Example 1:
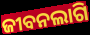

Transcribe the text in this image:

ଜୀବନଲାଗି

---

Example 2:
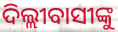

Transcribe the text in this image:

ଦିଲ୍ଲୀବାସୀଙ୍କୁ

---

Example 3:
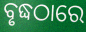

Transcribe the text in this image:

ବୃଦ୍ଧଠାରେ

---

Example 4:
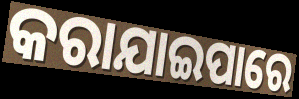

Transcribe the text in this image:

କରାଯାଇପାରେ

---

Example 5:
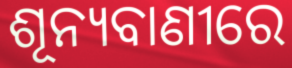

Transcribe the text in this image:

ଶୂନ୍ୟବାଣୀରେ